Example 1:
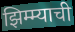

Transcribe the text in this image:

झिम्म्याची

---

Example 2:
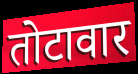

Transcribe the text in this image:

तोटावार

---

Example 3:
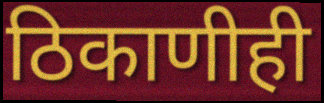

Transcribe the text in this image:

ठिकाणीही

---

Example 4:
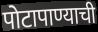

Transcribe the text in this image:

पोटापाण्याची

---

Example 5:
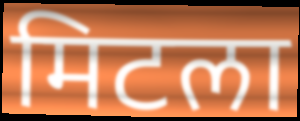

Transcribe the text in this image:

मिटला